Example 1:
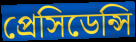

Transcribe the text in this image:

প্রেসিডেন্সি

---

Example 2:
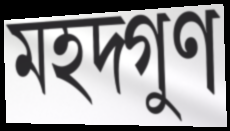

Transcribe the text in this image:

মহদ্গুণ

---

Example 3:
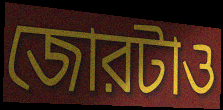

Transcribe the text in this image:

জোরটাও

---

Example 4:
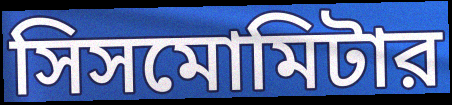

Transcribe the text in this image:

সিসমোমিটার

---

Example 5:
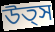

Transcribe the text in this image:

উত্স